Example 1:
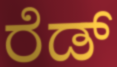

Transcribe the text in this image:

ರೆಡ್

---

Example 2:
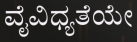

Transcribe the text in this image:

ವೈವಿಧ್ಯತೆಯೇ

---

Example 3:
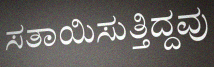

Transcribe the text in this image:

ಸತಾಯಿಸುತ್ತಿದ್ದವು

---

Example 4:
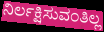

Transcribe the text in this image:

ನಿರ್ಲಕ್ಷಿಸುವಂತಿಲ್ಲ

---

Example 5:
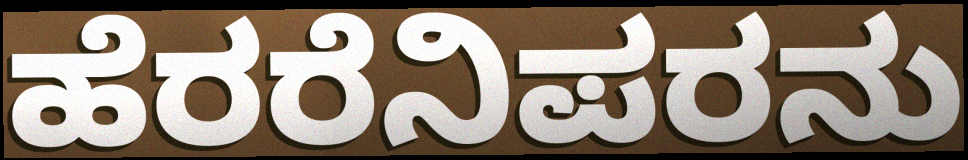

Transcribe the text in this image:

ಹೆರರೆನಿಪರನು